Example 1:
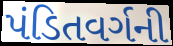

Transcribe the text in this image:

પંડિતવર્ગની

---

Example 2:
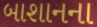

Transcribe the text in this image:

બાશાનના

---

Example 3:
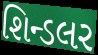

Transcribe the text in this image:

શિન્ડલર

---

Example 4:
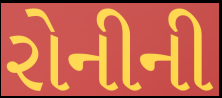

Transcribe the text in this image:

રોનીની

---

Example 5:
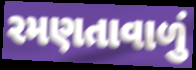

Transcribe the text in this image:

રમણતાવાળું